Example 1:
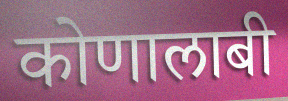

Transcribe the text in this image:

कोणालाबी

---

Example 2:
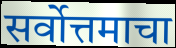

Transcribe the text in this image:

सर्वोत्तमाचा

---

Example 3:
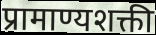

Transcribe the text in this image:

प्रामाण्यशक्ती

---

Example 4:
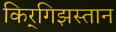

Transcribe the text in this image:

किर्गिझस्तान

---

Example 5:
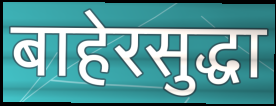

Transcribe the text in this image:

बाहेरसुद्धा